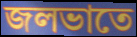
জলভাতে